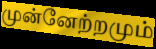
முன்னேற்றமும்